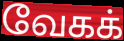
வேகக்